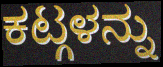
ಕಟ್ಗಳನ್ನು